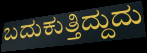
ಬದುಕುತ್ತಿದ್ದುದು